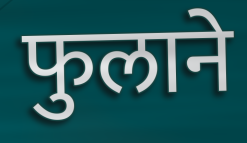
फुलाने